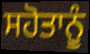
ਸਹੋਤਾਨੂੰ